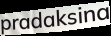
pradaksina